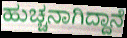
ಹುಚ್ಚನಾಗಿದ್ದಾನೆ